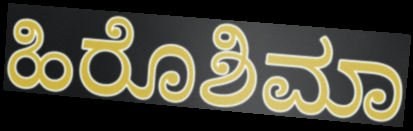
ಹಿರೊಶಿಮಾ